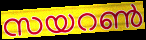
സയറൺ